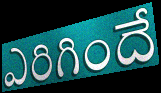
ఎరిగిందే